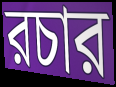
রচার